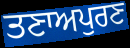
ਤਣਾਅਪੁਰਣ